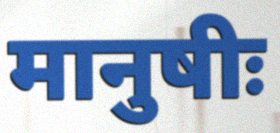
मानुषीः